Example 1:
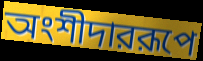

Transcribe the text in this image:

অংশীদাররূপে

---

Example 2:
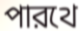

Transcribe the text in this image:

পারথে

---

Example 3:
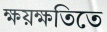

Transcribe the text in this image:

ক্ষয়ক্ষতিতে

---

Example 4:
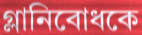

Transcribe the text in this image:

গ্লানিবোধকে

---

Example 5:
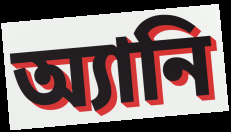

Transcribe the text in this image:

অ্যানি